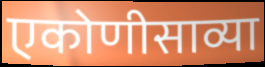
एकोणीसाव्या